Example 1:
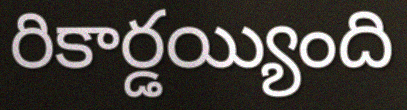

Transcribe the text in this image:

రికార్డయ్యింది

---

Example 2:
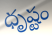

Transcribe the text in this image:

ధృష్టం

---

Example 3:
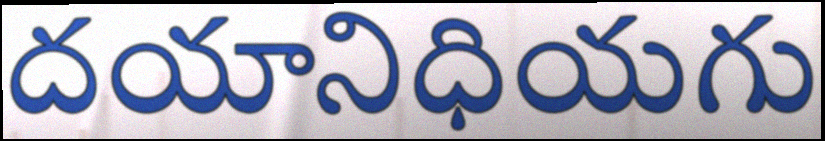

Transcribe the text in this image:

దయానిధియగు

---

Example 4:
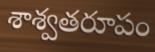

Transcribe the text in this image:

శాశ్వతరూపం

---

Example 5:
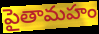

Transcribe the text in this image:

పైతామహం